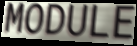
MODULE